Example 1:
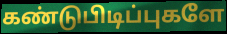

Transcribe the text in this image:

கண்டுபிடிப்புகளே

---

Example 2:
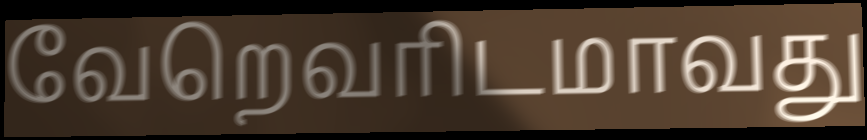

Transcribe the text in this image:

வேறெவரிடமாவது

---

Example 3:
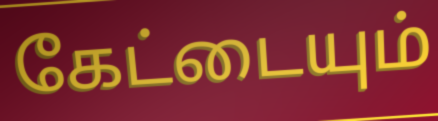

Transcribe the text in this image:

கேட்டையும்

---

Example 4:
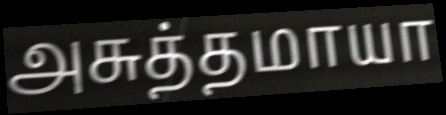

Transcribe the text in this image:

அசுத்தமாயா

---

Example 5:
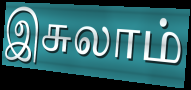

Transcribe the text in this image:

இசுலாம்